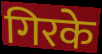
गिरके